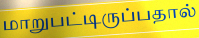
மாறுபட்டிருப்பதால்